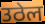
उठेल